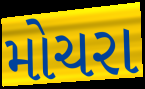
મોચરા